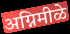
अग्निमीळे